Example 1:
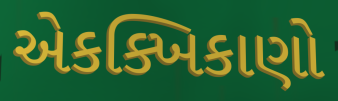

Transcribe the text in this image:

એકક્ખિકાણો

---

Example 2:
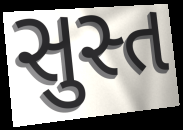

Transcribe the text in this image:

સુસ્ત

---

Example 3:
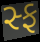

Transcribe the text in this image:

સ્ફ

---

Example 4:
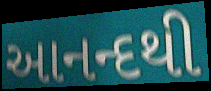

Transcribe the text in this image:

આનન્દથી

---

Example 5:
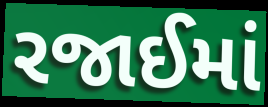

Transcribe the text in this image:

રજાઈમાં